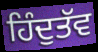
ਹਿੰਦੁਤੱਵ